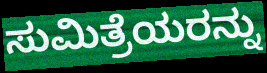
ಸುಮಿತ್ರೆಯರನ್ನು